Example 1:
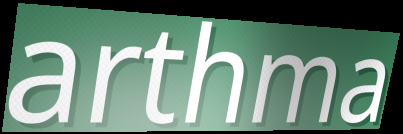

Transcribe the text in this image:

arthma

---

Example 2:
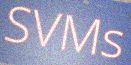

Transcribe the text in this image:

SVMs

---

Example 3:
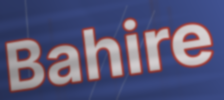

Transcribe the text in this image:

Bahire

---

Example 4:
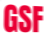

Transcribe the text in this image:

GSF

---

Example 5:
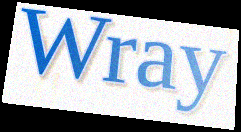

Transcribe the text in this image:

Wray